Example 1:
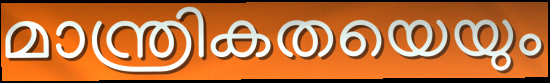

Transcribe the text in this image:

മാന്ത്രികതയെയും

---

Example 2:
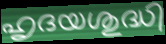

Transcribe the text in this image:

ഹൃദയശുദ്ധി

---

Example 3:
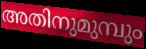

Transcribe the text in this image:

അതിനുമുമ്പും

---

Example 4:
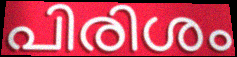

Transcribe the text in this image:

പിരിശം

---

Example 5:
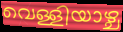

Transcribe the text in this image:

വെള്ളിയാഴ്ച